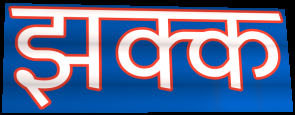
झक्क